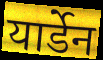
यार्डेन